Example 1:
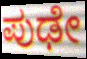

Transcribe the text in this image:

ಪುಢೇ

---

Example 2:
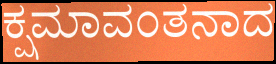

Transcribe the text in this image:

ಕ್ಷಮಾವಂತನಾದ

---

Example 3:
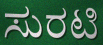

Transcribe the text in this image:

ಸುರಟಿ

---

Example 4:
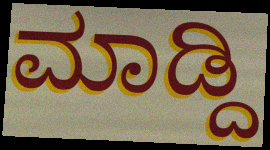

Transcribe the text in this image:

ಮಾಡ್ದಿ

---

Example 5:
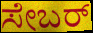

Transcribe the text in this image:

ಸೇಬರ್